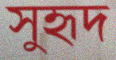
সুহৃদ